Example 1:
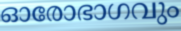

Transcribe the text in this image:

ഓരോഭാഗവും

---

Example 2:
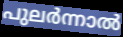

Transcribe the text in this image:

പുലർന്നാൽ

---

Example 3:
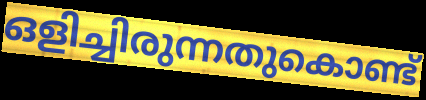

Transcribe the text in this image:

ഒളിച്ചിരുന്നതുകൊണ്ട്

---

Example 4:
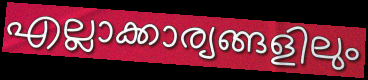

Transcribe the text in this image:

എല്ലാക്കാര്യങ്ങളിലും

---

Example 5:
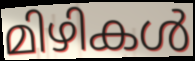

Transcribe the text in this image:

മിഴികൾ